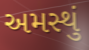
અમસ્થું